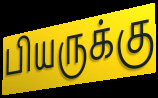
பியருக்கு